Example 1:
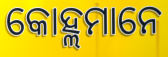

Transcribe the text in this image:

କୋହ୍ଲମାନେ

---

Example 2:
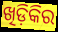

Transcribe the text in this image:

ଖିଡ଼ିକିର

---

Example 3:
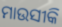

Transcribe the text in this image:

ମାଉସୀକି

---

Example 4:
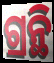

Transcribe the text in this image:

ଗ୍ରନ୍ଥି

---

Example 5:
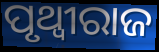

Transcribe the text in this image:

ପୃଥ୍ୱୀରାଜ